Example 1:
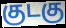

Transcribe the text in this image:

குடகு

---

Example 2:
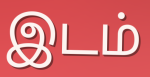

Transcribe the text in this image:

இடம்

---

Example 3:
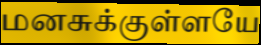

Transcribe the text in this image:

மனசுக்குள்ளயே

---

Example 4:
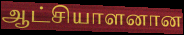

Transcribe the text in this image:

ஆட்சியாளனான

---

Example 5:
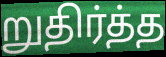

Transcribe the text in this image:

றுதிர்த்த